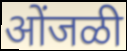
ओंजळी